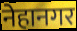
नेहानगर